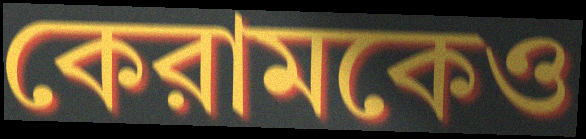
কেরামকেও